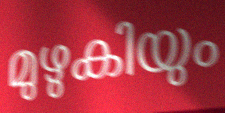
മുഴുകിയും